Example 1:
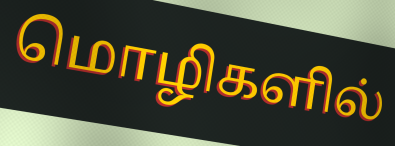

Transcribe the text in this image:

மொழிகளில்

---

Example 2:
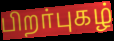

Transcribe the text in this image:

பிறர்புகழ்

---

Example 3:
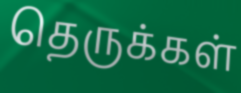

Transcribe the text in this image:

தெருக்கள்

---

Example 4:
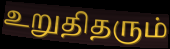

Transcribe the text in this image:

உறுதிதரும்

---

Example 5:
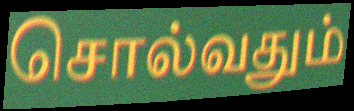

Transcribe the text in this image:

சொல்வதும்